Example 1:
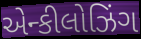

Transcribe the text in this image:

એન્કીલોઝિંગ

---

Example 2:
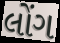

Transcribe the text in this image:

લોંગ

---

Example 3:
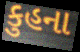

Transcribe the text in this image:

કુહના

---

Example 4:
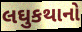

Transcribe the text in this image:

લઘુકથાનો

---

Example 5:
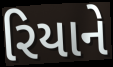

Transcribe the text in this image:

રિયાને